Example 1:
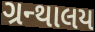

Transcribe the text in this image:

ગ્રન્થાલય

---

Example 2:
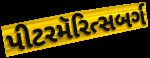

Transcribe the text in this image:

પીટરમૅરિત્સબર્ગ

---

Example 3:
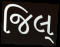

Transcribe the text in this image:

જિલ્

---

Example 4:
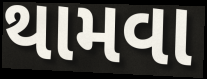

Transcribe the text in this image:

થામવા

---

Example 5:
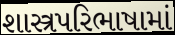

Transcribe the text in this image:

શાસ્ત્રપરિભાષામાં